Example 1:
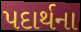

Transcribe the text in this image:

પદાર્થના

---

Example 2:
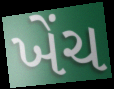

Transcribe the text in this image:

ખેંચ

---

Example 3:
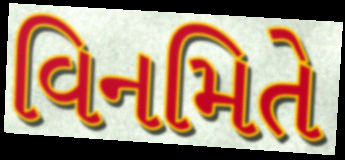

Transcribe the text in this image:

વિનમિતે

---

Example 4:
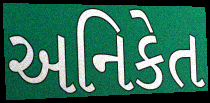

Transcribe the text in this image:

અનિકેત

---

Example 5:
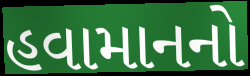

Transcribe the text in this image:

હવામાનનો